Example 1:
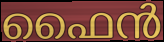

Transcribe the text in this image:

ഫൈൻ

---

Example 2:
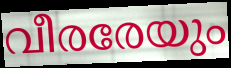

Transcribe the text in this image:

വീരരേയും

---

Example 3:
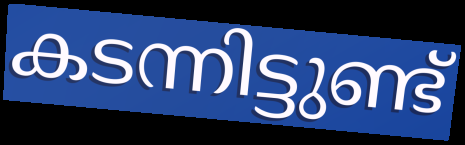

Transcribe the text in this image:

കടന്നിട്ടുണ്ട്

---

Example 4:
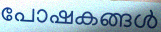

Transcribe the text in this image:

പോഷകങ്ങൾ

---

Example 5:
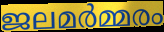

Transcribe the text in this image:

ജലമർമ്മരം